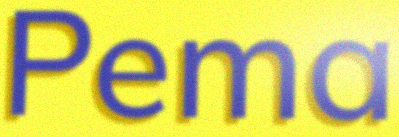
Pema